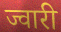
ज्वारी